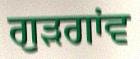
ਗੁਡ਼ਗਾਂਵ